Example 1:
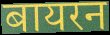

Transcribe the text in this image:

बायरन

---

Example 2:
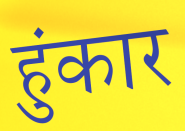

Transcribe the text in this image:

हुंकार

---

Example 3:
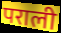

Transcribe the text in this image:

पराली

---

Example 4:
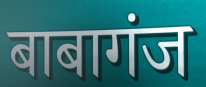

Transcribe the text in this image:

बाबागंज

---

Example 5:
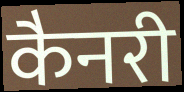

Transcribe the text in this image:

कैनरी